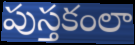
పుస్తకంలా